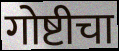
गोष्टीचा